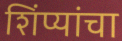
शिंप्यांचा